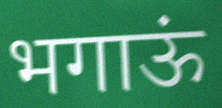
भगाऊं